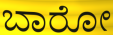
ಬಾರೋ